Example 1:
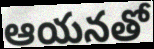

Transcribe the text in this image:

ఆయనతో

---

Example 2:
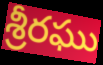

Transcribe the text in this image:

శ్రీరఘు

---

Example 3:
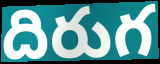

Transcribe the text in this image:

దిరుగ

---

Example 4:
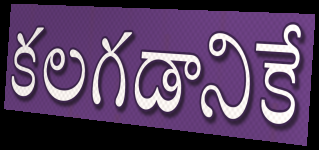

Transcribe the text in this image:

కలగడానికే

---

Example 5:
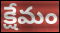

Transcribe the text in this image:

క్షేమం